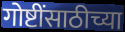
गोष्टींसाठीच्या